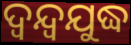
ଦ୍ୱନ୍ଦ୍ୱଯୁଦ୍ଧ